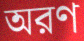
অরণ